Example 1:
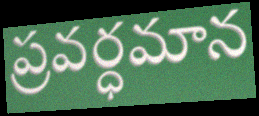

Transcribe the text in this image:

ప్రవర్ధమాన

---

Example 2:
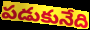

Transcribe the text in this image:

పడుకునేది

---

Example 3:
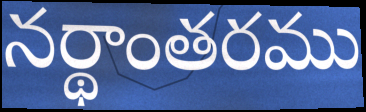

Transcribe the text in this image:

నర్థాంతరము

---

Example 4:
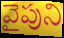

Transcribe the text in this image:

వైపుని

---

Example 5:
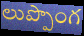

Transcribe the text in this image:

లుప్పొంగ